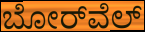
ಬೋರ್‌ವೆಲ್